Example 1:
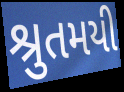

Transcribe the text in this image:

શ્રુતમયી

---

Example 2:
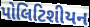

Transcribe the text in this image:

પોલિટિશીયન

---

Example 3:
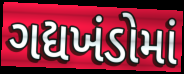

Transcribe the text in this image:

ગદ્યખંડોમાં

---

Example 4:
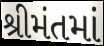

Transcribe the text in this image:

શ્રીમંતમાં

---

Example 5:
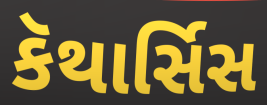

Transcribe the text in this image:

કૅથાર્સિસ